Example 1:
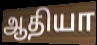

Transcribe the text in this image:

ஆதியா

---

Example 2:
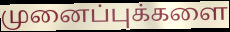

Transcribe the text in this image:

முனைப்புக்களை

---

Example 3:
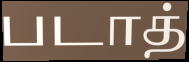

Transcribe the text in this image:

படாத்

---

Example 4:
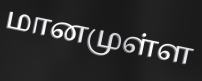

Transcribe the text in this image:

மானமுள்ள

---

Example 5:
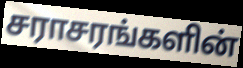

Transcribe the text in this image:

சராசரங்களின்